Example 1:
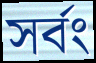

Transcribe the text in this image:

সর্বং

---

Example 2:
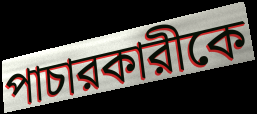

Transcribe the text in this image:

পাচারকারীকে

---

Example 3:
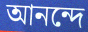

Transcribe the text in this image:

আনন্দে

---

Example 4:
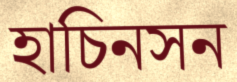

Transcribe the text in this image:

হাচিনসন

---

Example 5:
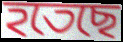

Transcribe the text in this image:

হতেছে